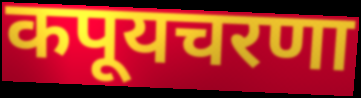
कपूयचरणा